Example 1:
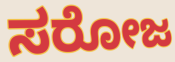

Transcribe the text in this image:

ಸರೋಜ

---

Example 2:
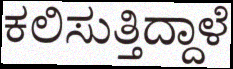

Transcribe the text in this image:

ಕಲಿಸುತ್ತಿದ್ದಾಳೆ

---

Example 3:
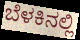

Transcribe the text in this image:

ಬೆಳಕಿನಲ್ಲಿ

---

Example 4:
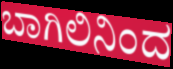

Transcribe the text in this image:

ಬಾಗಿಲಿನಿಂದ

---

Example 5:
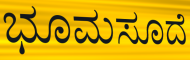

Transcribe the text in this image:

ಭೂಮಸೂದೆ